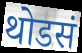
थोडसं